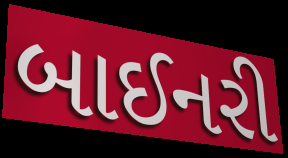
બાઈનરી